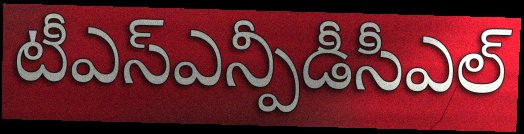
టీఎస్ఎన్పీడీసీఎల్